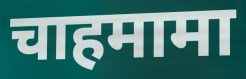
चाहमामा